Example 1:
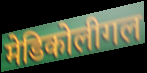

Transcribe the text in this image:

मेडिकोलीगल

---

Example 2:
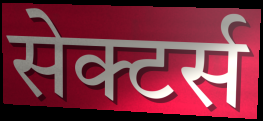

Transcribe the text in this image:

सेक्‍टर्स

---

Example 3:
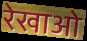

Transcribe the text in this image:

रेखाओ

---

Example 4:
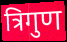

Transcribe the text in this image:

त्रिगुण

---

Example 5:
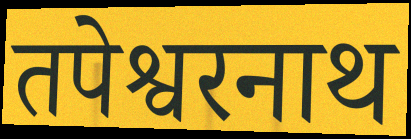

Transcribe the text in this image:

तपेश्वरनाथ